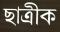
ছাত্ৰীক